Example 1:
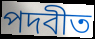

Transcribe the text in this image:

পদবীত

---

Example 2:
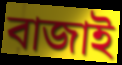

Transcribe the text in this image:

বাজাই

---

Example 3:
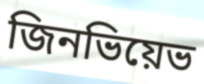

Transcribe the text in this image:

জিনভিয়েভ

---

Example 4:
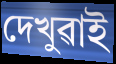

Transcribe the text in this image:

দেখুৱাই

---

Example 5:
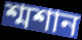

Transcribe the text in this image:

শ্মশান